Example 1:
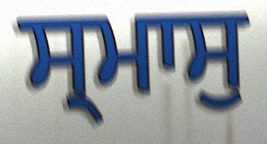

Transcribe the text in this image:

ਸ੍ਮਾਸੁ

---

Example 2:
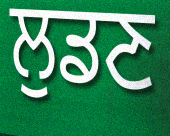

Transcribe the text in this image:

ਲੁਡਣ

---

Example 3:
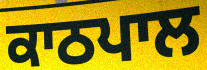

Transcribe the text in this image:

ਕਾਠਪਾਲ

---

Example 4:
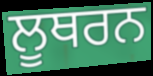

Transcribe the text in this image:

ਲੂਥਰਨ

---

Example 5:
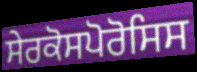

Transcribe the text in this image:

ਸੇਰਕੋਸਪੋਰੋਸਿਸ